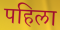
पहिला